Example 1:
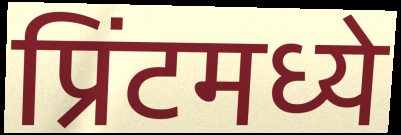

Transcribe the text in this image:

प्रिंटमध्ये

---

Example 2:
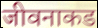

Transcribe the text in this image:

जीवनाकड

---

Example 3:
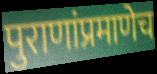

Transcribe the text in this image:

पुराणांप्रमाणेच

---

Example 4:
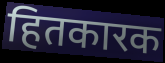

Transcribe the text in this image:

हितकारक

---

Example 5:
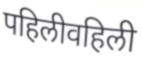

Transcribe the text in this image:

पहिलीवहिली